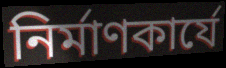
নির্মাণকার্যে